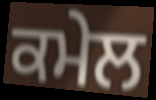
ਕਮੇਲ